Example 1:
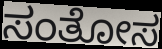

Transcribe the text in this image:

ಸಂತೋಸ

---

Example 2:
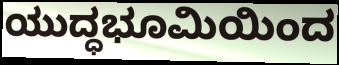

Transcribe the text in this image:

ಯುದ್ಧಭೂಮಿಯಿಂದ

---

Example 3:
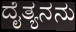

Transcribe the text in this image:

ದೈತ್ಯನನು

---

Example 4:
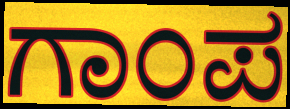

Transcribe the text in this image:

ಗಾಂಪ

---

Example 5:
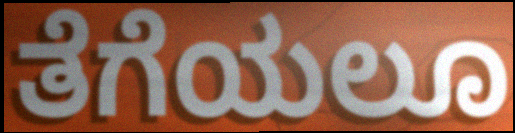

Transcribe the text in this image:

ತೆಗೆಯಲೂ